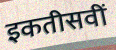
इकतीसवीं